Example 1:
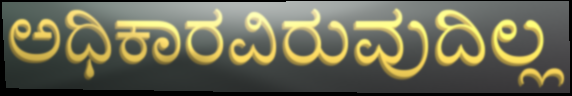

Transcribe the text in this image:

ಅಧಿಕಾರವಿರುವುದಿಲ್ಲ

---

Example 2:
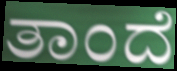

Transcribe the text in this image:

ತಾಂದೆ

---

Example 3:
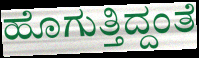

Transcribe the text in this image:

ಹೊಗುತ್ತಿದ್ದಂತೆ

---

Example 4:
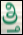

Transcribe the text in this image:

ತ್ತಿ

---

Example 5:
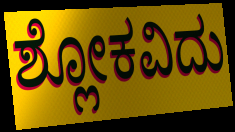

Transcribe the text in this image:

ಶ್ಲೋಕವಿದು